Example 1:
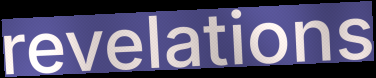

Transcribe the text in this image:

revelations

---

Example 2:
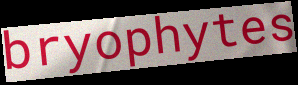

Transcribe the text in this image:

bryophytes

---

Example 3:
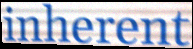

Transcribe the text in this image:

inherent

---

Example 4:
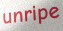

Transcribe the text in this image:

unripe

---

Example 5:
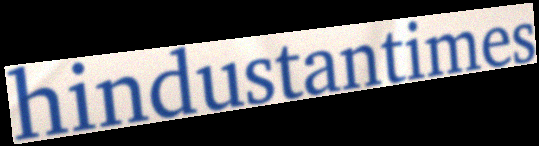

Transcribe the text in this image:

hindustantimes